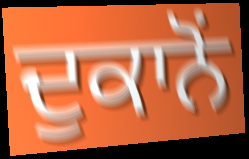
ਦੁਕਾਨੋਂ